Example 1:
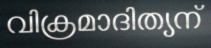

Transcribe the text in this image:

വിക്രമാദിത്യന്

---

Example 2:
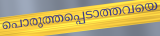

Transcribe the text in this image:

പൊരുത്തപ്പെടാത്തവയെ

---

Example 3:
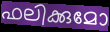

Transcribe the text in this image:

ഫലിക്കുമോ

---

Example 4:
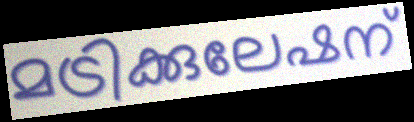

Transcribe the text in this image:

മട്രിക്കുലേഷന്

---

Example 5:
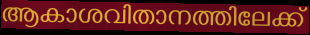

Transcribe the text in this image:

ആകാശവിതാനത്തിലേക്ക്